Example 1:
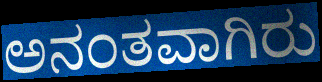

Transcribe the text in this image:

ಅನಂತವಾಗಿರು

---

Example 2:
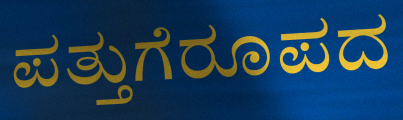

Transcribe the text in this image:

ಪತ್ತುಗೆರೂಪದ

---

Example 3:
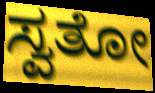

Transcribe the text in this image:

ಸ್ವತೋ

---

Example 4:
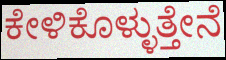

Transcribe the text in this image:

ಕೇಳಿಕೊಳ್ಳುತ್ತೇನೆ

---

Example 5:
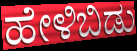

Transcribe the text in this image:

ಹೇಳಿಬಿಡು